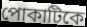
পোকাটিকে